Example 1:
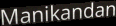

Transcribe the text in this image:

Manikandan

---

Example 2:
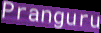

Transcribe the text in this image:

Pranguru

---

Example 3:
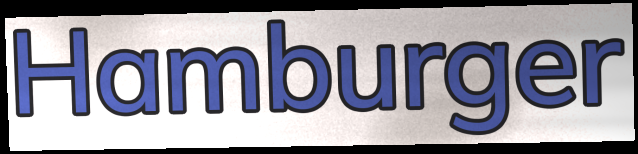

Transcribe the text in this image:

Hamburger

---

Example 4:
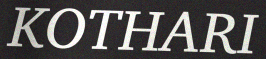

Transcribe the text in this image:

KOTHARI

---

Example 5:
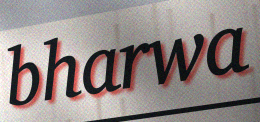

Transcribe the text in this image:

bharwa